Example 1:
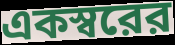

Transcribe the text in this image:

একস্বরের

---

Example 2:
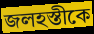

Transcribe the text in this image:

জলহস্তীকে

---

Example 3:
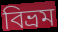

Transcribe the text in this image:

বিভ্রম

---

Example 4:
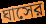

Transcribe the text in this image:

ঘাসের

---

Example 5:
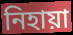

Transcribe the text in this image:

নিহায়া